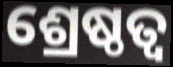
ଶ୍ରେଷ୍ଠତ୍ବ